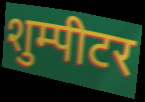
शुम्पीटर